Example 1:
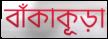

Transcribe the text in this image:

বাঁকাকূড়া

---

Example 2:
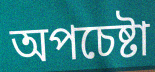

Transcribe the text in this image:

অপচেষ্টা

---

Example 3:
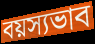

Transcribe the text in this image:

বয়স্যভাব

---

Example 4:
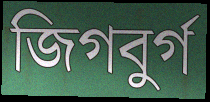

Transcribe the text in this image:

জিগবুর্গ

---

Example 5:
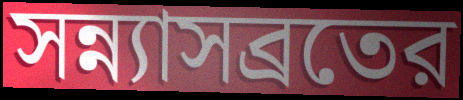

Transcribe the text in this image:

সন্ন্যাসব্রতের